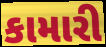
કામારી